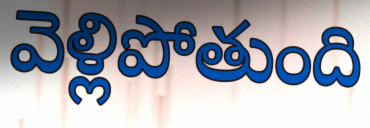
వెళ్లిపోతుంది